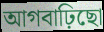
আগবাঢ়িছো